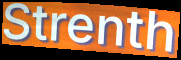
Strenth